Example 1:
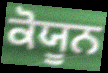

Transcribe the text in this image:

ਕੋਯੂਨ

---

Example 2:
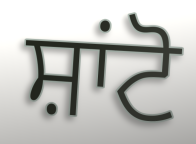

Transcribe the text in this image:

ਸ਼ਾਂਟੋ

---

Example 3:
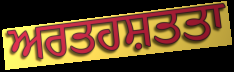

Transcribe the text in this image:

ਅਰਤਹਸ਼ਤਤਾ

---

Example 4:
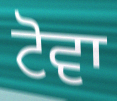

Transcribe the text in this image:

ਟੋਵਾ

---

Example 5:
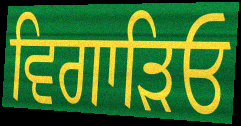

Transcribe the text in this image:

ਵਿਗਾੜਿਓ